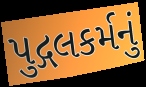
પુદ્ગલકર્મનું